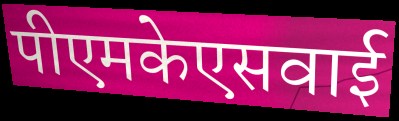
पीएमकेएसवाई